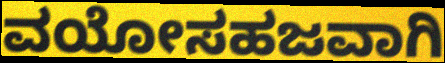
ವಯೋಸಹಜವಾಗಿ